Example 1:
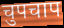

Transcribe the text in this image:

चुपचाप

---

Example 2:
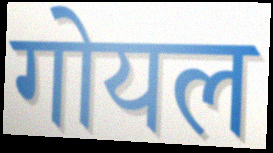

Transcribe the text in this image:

गोयल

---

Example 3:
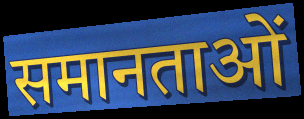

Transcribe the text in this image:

समानताओं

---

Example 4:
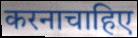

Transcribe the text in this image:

करनाचाहिए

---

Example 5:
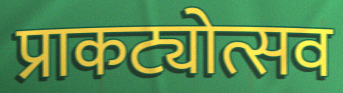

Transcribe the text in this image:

प्राकट्योत्सव